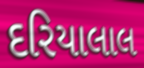
દરિયાલાલ